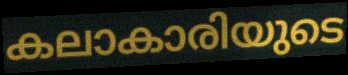
കലാകാരിയുടെ